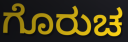
ಗೊರುಚ